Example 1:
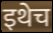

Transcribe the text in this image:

इथेच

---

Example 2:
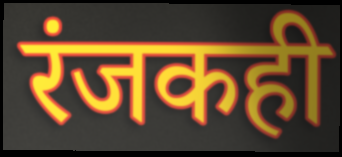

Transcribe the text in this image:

रंजकही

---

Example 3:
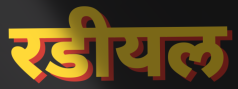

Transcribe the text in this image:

रडीयल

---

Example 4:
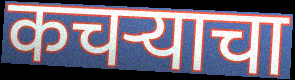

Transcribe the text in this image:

कचऱ्याचा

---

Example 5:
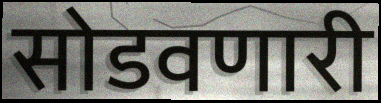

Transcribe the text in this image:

सोडवणारी